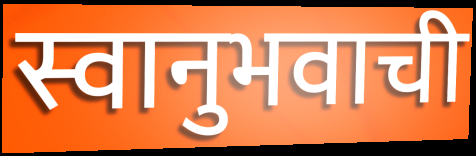
स्वानुभवाची